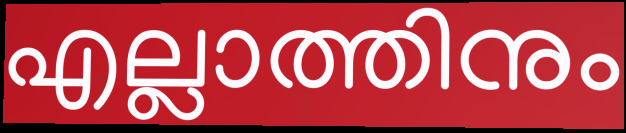
എല്ലാത്തിനും